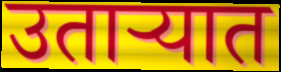
उताऱ्यात